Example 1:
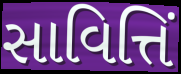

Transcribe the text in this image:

સાવિત્તિં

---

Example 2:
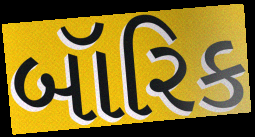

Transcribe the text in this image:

બૉરિક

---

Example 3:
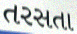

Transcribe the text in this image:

તરસતા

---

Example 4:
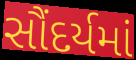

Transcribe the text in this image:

સૌંદર્યમાં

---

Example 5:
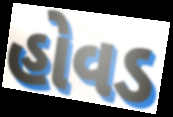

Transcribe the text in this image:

હોવડ